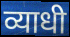
व्याधी